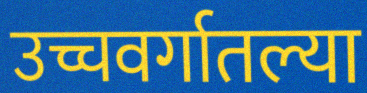
उच्चवर्गातल्या